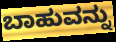
ಬಾಹುವನ್ನು